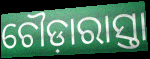
ଚୌଡ଼ାରାସ୍ତା